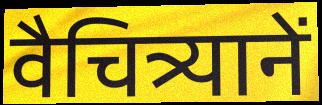
वैचित्र्यानें